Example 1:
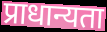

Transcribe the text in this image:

प्राधान्यता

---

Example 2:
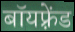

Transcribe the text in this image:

बॉयफ़्रेंड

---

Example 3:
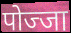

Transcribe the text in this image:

पोज्जा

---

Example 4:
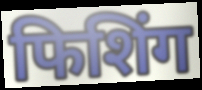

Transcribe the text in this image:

फिशिंग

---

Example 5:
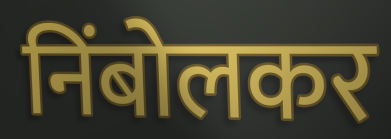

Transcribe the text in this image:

निंबोलकर